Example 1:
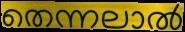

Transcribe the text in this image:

തെന്നലാൽ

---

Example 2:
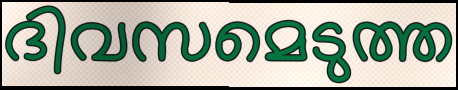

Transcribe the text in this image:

ദിവസമെടുത്ത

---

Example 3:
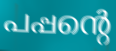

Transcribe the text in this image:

പപ്പന്റെ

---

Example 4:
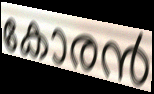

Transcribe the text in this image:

കോരൻ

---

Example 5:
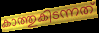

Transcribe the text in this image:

കാത്തുകിടന്നത്